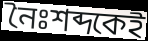
নৈঃশব্দকেই